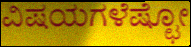
ವಿಷಯಗಳೆಷ್ಟೋ